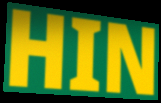
HIN